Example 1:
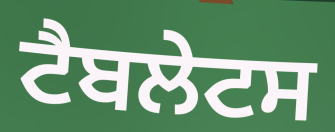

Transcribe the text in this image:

ਟੈਬਲੇਟਸ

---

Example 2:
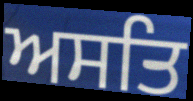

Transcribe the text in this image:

ਅਸਤਿ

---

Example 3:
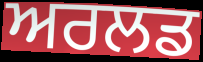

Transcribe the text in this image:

ਅਰਲਡ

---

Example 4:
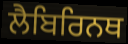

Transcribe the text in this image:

ਲੈਬਿਰਿਨਥ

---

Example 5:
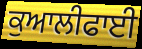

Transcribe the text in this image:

ਕੁਆਲੀਫਾਈ